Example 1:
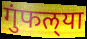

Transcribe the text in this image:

गुंफल्या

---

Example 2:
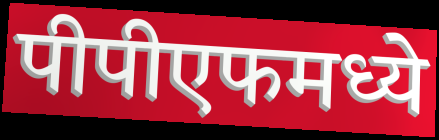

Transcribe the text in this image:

पीपीएफमध्ये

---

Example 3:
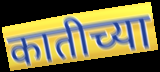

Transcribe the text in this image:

कातीच्या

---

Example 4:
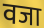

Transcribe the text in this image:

वजा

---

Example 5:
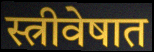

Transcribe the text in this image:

स्त्रीवेषात